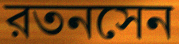
রতনসেন